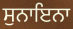
ਸੁਨਾਇਨਾ